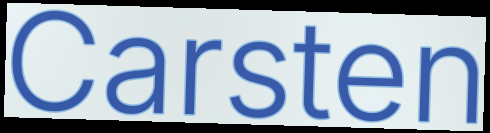
Carsten